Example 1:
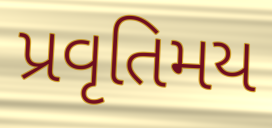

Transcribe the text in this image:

પ્રવૃતિમય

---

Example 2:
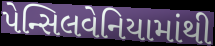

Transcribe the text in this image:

પેન્સિલવેનિયામાંથી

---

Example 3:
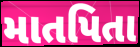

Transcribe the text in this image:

માતપિતા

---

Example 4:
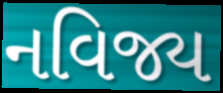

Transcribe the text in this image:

નવિજ્ય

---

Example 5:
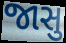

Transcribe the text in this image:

જાસુ